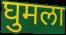
घुमला